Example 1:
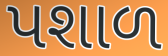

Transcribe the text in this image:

પશાળ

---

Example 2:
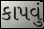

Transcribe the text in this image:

કાપવું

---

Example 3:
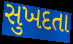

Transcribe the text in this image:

સુખદતા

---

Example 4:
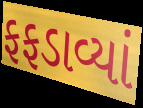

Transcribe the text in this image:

ફફડાવ્યાં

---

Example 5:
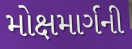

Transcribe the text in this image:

મોક્ષમાર્ગની